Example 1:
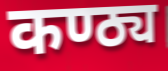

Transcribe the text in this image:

कण्ठ्य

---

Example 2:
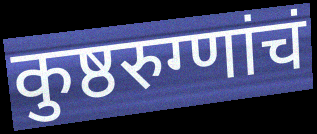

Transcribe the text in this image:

कुष्ठरुग्णांचं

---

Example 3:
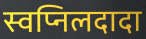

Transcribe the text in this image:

स्वप्निलदादा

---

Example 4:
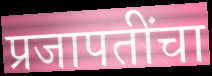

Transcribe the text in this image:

प्रजापतींचा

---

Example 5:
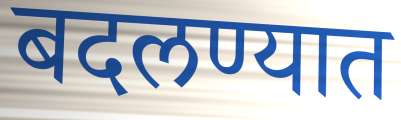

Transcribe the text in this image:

बदलण्यात